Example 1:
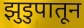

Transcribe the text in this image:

झुडुपातून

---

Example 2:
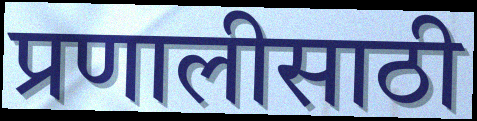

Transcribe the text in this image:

प्रणालीसाठी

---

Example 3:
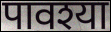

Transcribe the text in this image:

पावश्या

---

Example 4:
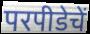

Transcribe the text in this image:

परपीडेचें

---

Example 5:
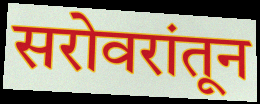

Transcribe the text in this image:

सरोवरांतून